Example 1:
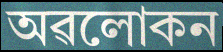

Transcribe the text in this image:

অৱলোকন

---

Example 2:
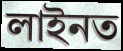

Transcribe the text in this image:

লাইনত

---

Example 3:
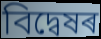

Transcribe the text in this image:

বিদ্বেষৰ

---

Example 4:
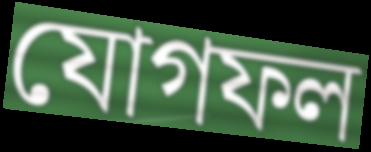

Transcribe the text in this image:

যোগফল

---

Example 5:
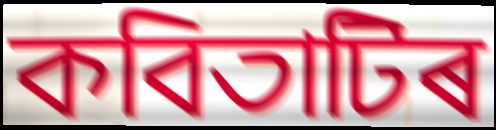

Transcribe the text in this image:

কবিতাটিৰ